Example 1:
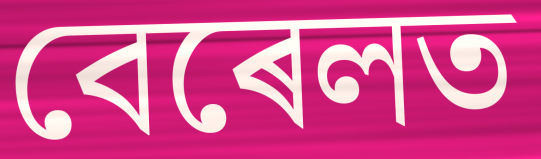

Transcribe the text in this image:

বেৰেলত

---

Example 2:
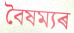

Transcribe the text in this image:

বৈষম্যৰ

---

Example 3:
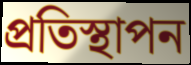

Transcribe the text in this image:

প্ৰতিস্থাপন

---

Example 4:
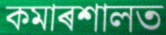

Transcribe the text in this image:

কমাৰশালত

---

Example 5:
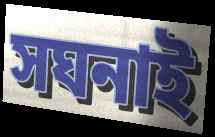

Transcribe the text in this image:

সঘনাই